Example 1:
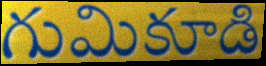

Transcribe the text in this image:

గుమికూడి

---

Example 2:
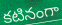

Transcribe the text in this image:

కటినంగా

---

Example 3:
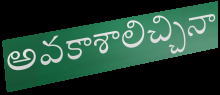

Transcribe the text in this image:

అవకాశాలిచ్చినా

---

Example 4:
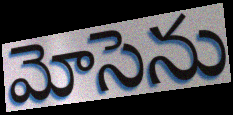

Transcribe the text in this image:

మోసెను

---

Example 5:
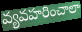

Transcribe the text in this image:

వ్యవహరించాలా